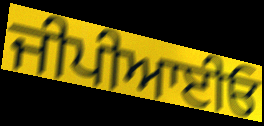
ਜੀਪੀਆਈਓ